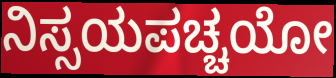
ನಿಸ್ಸಯಪಚ್ಚಯೋ